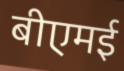
बीएमई